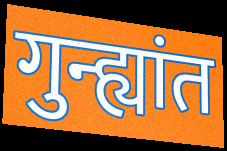
गुन्ह्यांत